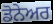
ਡੋਨੇਅਰ